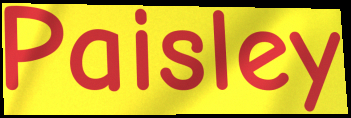
Paisley